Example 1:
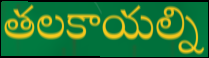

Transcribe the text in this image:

తలకాయల్ని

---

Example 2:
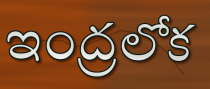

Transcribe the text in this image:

ఇంద్రలోక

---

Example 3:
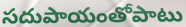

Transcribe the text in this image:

సదుపాయంతోపాటు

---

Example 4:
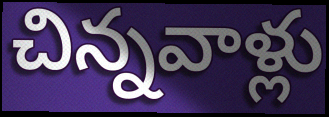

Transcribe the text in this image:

చిన్నవాళ్లు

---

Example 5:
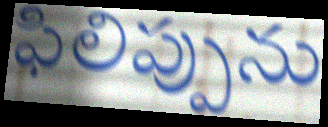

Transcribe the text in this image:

ఫిలిప్పును